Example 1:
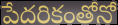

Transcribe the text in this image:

పేదరికంతోనో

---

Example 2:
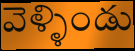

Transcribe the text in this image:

వెళ్ళిండు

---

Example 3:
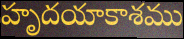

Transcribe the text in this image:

హృదయాకాశము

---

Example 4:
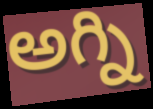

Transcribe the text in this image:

అగ్ని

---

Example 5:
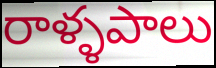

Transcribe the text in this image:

రాళ్ళపాలు